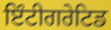
ਇੰਟੀਗਰੇਟਿਡ